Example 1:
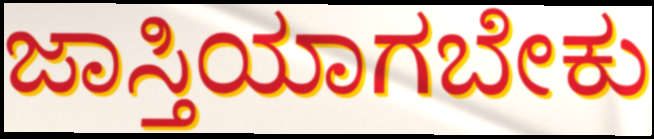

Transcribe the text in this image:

ಜಾಸ್ತಿಯಾಗಬೇಕು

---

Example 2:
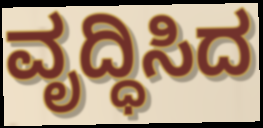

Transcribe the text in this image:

ವೃದ್ಧಿಸಿದ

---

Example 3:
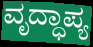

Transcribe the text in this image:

ವೃದ್ಧಾಪ್ಯ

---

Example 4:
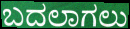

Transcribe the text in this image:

ಬದಲಾಗಲು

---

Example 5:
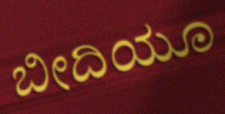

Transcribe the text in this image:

ಬೀದಿಯೂ